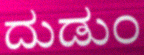
ದುಡುಂ